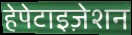
हेपेटाइज़ेशन